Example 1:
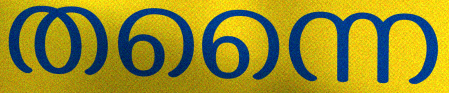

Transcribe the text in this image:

തന്നൈ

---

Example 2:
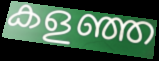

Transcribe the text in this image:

കളഞ്ഞ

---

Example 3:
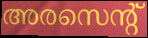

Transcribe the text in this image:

അരസെന്റ്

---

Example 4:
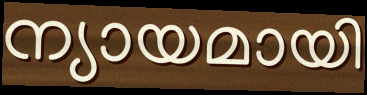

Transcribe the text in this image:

ന്യായമായി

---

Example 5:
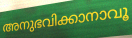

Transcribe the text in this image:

അനുഭവിക്കാനാവൂ